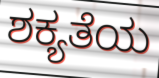
ಶಕ್ಯತೆಯ